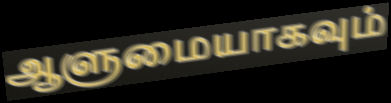
ஆளுமையாகவும்